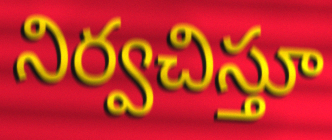
నిర్వచిస్తూ